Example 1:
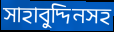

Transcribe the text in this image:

সাহাবুদ্দিনসহ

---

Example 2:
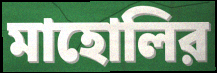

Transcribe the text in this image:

মাহোলির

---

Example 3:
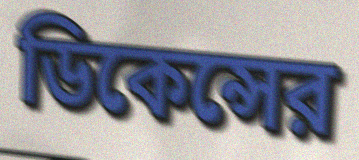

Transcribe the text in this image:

ডিকেন্সের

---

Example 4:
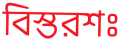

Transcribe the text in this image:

বিস্তরশঃ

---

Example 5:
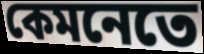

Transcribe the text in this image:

কেমনেতে